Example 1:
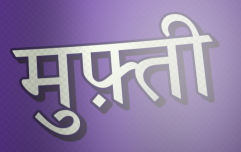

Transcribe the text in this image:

मुफ़्ती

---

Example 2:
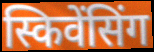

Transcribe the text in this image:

स्किवेंसिंग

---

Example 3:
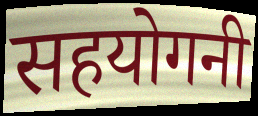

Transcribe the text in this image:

सहयोगनी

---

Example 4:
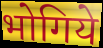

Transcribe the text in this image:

भोगिये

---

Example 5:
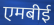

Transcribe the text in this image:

एमबीई